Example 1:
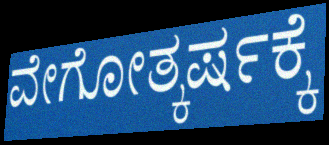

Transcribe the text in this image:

ವೇಗೋತ್ಕರ್ಷಕ್ಕೆ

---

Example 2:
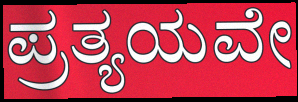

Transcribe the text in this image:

ಪ್ರತ್ಯಯವೇ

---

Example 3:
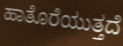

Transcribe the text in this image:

ಹಾತೊರೆಯುತ್ತದೆ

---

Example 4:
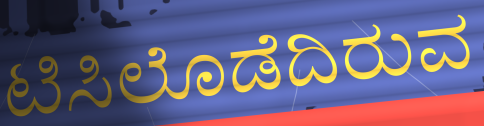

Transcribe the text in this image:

ಟಿಸಿಲೊಡೆದಿರುವ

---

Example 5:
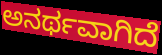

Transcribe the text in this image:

ಅನರ್ಥವಾಗಿದೆ